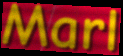
Marl